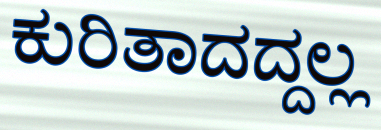
ಕುರಿತಾದದ್ದಲ್ಲ